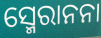
ସ୍ମେରାନନା